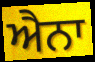
ਐਨਾ